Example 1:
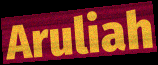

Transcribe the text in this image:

Aruliah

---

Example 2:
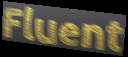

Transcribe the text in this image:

Fluent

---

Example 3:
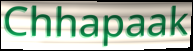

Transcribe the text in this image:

Chhapaak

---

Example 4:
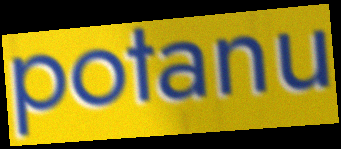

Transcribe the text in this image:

potanu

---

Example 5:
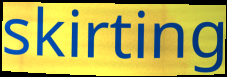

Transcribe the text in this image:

skirting